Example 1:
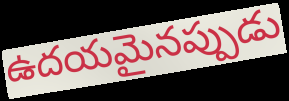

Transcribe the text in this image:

ఉదయమైనప్పుడు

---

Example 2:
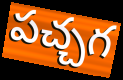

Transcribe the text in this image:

పచ్చగ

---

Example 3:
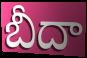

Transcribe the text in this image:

బీదా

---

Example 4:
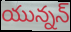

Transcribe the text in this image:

యున్నన్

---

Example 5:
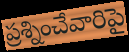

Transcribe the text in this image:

ప్రశ్నించేవారిపై